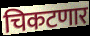
चिकटणार